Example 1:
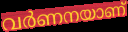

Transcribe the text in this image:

വർണനയാണ്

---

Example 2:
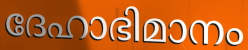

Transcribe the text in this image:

ദേഹാഭിമാനം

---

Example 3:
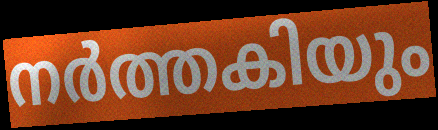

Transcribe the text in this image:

നർത്തകിയും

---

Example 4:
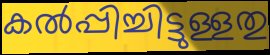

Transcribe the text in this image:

കൽപ്പിച്ചിട്ടുള്ളതു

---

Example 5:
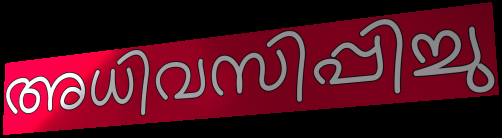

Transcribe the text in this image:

അധിവസിപ്പിച്ചു